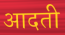
आदती